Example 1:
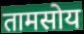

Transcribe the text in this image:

तामसोय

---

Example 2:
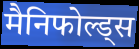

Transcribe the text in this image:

मैनिफोल्ड्स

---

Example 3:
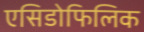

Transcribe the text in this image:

एसिडोफिलिक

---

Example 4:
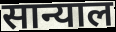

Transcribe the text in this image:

सान्याल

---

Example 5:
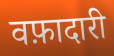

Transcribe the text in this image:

वफ़ादारी